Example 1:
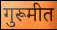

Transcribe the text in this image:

गुरूमीत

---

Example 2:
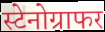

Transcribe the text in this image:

स्टेनोग्राफर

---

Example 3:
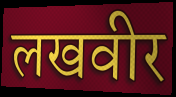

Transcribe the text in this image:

लखवीर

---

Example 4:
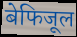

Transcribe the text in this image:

बेफिजूल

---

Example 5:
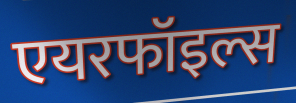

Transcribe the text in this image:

एयरफॉइल्स